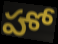
హో